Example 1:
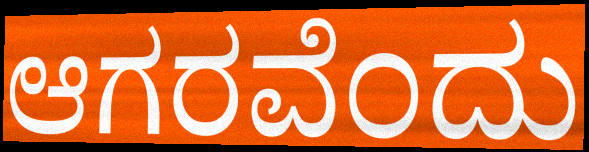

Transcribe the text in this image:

ಆಗರವೆಂದು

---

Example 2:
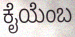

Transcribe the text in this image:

ಕೈಯೆಂಬ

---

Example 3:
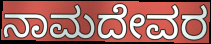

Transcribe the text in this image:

ನಾಮದೇವರ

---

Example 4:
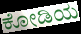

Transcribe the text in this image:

ಕೋಡಿಯ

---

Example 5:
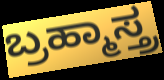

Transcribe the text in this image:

ಬ್ರಹ್ಮಾಸ್ತ್ರ